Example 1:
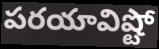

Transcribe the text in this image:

పరయావిష్టో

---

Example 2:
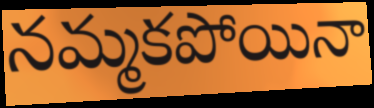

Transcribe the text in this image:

నమ్మకపోయినా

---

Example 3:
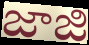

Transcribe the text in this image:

జాజి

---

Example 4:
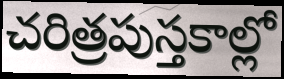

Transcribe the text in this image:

చరిత్రపుస్తకాల్లో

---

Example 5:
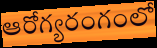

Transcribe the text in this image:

ఆరోగ్యరంగంలో